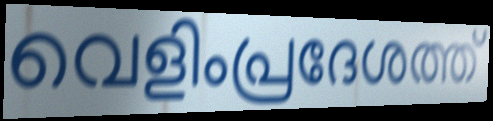
വെളിംപ്രദേശത്ത്